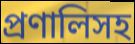
প্রণালিসহ